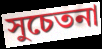
সুচেতনা